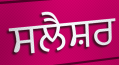
ਸਲੈਸ਼ਰ